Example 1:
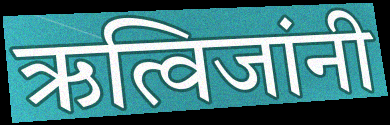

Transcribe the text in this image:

ऋत्विजांनी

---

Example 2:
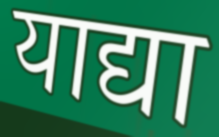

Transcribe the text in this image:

याद्या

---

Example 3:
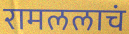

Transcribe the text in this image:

रामललाचं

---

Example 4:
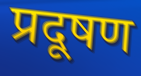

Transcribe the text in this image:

प्रदूषण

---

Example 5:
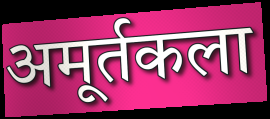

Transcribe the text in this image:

अमूर्तकला